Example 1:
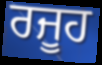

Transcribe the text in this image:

ਰਜੂਹ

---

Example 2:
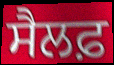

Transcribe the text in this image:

ਸੈਲਫ਼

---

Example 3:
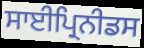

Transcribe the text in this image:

ਸਾਈਪ੍ਰਿਨੀਡਸ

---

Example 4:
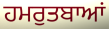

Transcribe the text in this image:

ਹਮਰੁਤਬਾਆਂ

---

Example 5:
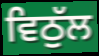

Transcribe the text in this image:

ਵਿਠੁੱਲ